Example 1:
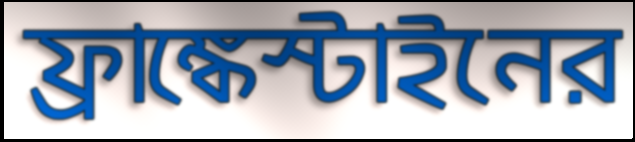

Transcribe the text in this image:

ফ্রাঙ্কেস্টাইনের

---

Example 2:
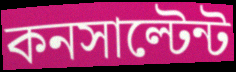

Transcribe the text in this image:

কনসাল্টেন্ট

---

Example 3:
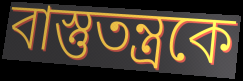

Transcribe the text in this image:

বাস্তুতন্ত্রকে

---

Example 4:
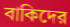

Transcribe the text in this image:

বাকিদের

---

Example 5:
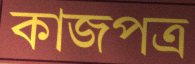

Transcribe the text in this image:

কাজপত্র